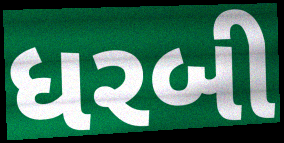
ધરબી